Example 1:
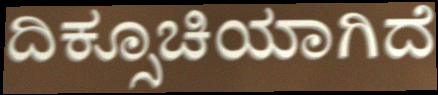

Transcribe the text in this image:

ದಿಕ್ಸೂಚಿಯಾಗಿದೆ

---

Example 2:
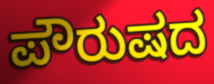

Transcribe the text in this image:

ಪೌರುಷದ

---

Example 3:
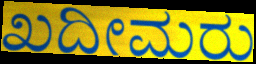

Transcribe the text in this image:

ಖದೀಮರು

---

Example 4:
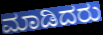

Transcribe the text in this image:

ಮಾಡಿದರು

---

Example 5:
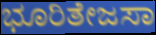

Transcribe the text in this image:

ಭೂರಿತೇಜಸಾ